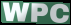
WPC